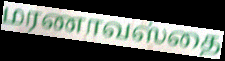
மரணாவஸ்தை